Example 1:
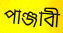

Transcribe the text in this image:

পাঞ্জাবী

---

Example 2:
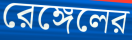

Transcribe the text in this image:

রেঙ্গেলের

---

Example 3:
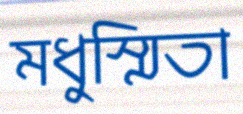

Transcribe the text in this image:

মধুস্মিতা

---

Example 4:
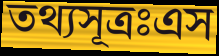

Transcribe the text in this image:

তথ্যসূত্রঃএস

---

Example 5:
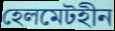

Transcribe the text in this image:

হেলমেটহীন